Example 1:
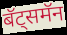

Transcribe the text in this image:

बॅट्समॅन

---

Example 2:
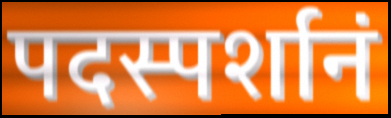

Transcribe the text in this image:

पदस्पर्शानं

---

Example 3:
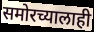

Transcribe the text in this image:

समोरच्यालाही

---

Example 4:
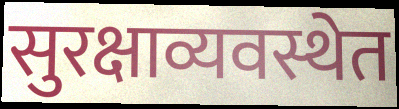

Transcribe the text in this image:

सुरक्षाव्यवस्थेत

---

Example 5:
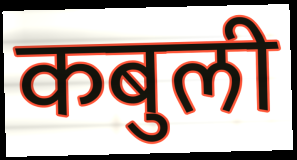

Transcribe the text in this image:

कबुली